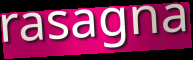
rasagna